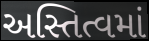
અસ્તિત્વમાં